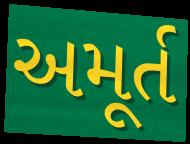
અમૂર્ત